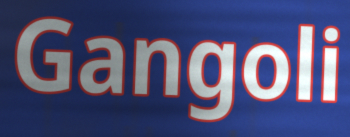
Gangoli